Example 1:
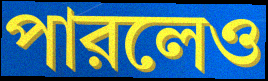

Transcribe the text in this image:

পারলেও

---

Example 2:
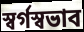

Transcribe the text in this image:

স্বর্গস্বভাব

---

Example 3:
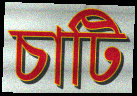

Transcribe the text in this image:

চাটি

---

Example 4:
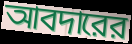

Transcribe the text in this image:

আবদারের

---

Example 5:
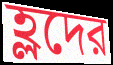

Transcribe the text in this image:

হ্লদের